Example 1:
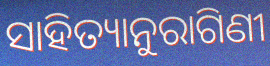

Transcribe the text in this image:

ସାହିତ୍ୟାନୁରାଗିଣୀ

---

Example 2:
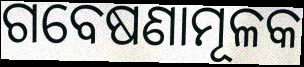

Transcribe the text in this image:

ଗବେଷଣାମୂଳକ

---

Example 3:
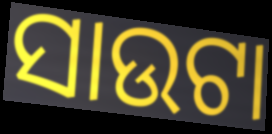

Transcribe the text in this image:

ସାଉଟା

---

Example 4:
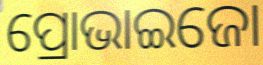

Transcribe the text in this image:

ପ୍ରୋଭାଇଜୋ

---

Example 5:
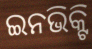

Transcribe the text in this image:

ଇନଭିକ୍ଟି